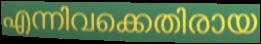
എന്നിവക്കെതിരായ